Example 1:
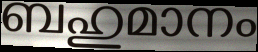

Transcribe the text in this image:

ബഹുമാനം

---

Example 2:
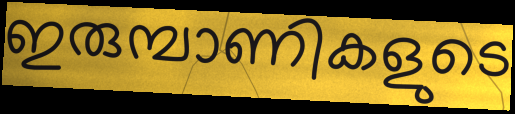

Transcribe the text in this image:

ഇരുമ്പാണികളുടെ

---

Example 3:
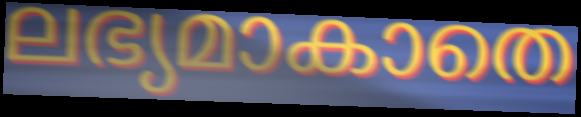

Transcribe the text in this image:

ലഭ്യമാകാതെ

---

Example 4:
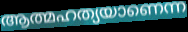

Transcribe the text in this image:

ആത്മഹത്യയാണെന്ന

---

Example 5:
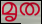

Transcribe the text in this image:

മൃത